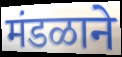
मंडळाने